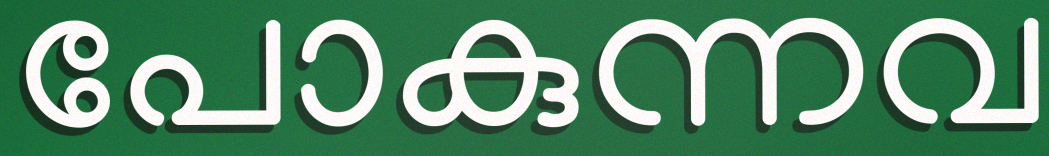
പോകുന്നവ